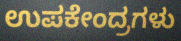
ಉಪಕೇಂದ್ರಗಳು